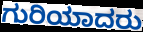
ಗುರಿಯಾದರು